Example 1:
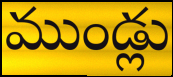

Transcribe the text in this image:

ముండ్లు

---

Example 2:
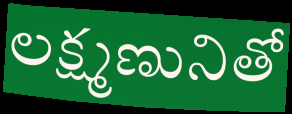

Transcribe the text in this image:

లక్ష్మణునితో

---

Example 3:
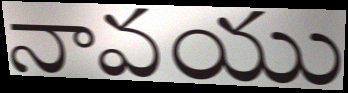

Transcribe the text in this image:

నావయు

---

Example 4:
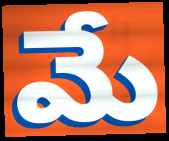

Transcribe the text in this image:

మే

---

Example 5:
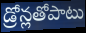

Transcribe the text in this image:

డ్రోన్లతోపాటు